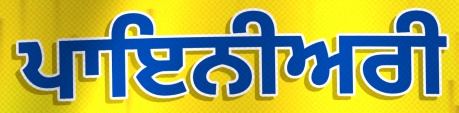
ਪਾਇਨੀਅਰੀ